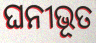
ଘନୀଭୂତ